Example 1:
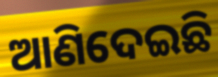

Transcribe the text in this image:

ଆଣିଦେଇଛି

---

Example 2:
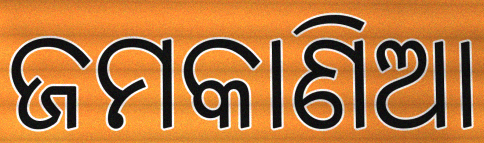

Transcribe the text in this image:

ଜମକାଣିଆ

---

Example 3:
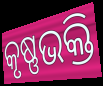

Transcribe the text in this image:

କୃଷ୍ଣଭକ୍ତି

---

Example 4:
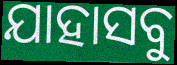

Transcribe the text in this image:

ଯାହାସବୁ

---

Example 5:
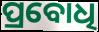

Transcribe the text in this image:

ପ୍ରବୋଧି